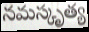
నమస్కృత్య